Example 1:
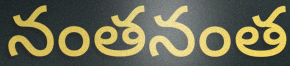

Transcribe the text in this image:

నంతనంత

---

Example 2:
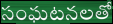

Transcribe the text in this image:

సంఘటనలతో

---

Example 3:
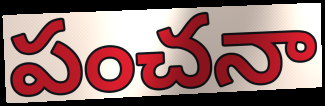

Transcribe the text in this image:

పంచనా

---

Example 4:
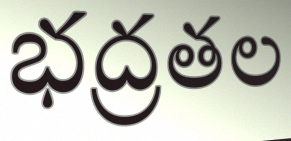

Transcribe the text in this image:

భద్రతల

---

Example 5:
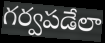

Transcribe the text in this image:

గర్వపడేలా